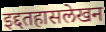
इद्दतहासलेखन